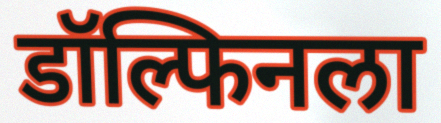
डॉल्फिनला